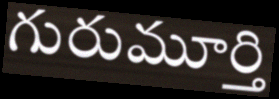
గురుమూర్తి